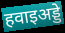
हवाइअड्डे